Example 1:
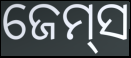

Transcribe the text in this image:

ଜେମ୍‍ସ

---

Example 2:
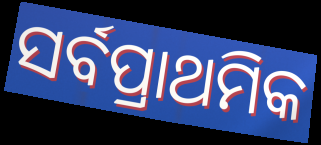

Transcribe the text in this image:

ସର୍ବପ୍ରାଥମିକ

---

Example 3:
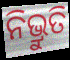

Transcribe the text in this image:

ନିଭ୍ରୁତି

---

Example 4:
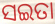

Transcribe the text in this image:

ସଇତା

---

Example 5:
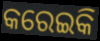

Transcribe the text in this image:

କରେଇକି